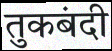
तुकबंदी